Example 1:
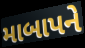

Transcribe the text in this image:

માબાપને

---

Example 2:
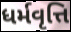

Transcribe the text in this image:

ધર્મવૃત્તિ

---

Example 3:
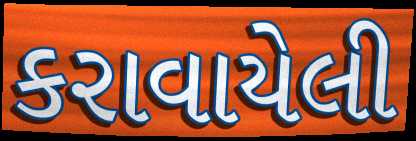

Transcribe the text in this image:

કરાવાયેલી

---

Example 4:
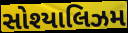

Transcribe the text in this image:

સોશ્યાલિઝમ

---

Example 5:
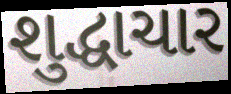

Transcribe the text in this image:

શુદ્ધાચાર